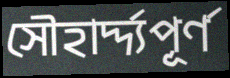
সৌহার্দ্দ্যপূর্ণ